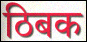
ठिबक